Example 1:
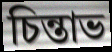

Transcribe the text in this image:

চিন্তাভ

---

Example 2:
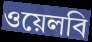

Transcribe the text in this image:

ওয়েলবি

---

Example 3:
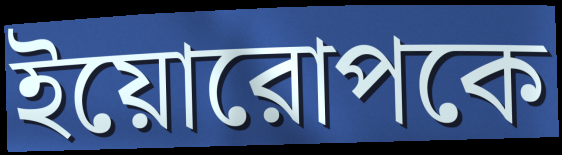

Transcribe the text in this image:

ইয়োরোপকে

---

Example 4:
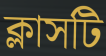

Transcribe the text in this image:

ক্লাসটি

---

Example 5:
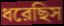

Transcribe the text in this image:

ধরেছিস